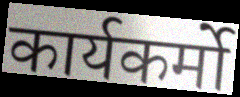
कार्यकर्मो